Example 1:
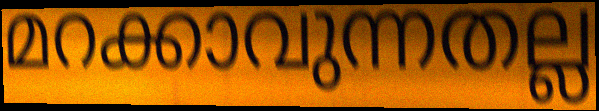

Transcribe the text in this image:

മറക്കാവുന്നതല്ല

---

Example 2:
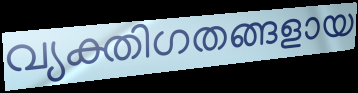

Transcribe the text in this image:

വ്യക്തിഗതങ്ങളായ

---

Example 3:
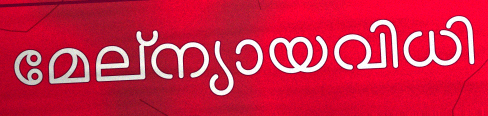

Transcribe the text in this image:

മേല്ന്യായവിധി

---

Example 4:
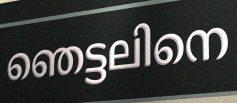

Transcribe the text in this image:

ഞെട്ടലിനെ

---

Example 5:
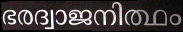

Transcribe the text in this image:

ഭരദ്വാജനിത്ഥം